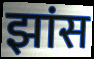
झांस